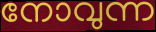
നോവുന്ന